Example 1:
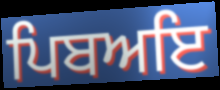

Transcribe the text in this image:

ਪਿਬਅਇ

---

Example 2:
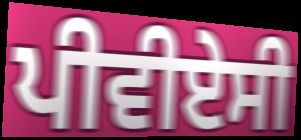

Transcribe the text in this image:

ਪੀਵੀਏਸੀ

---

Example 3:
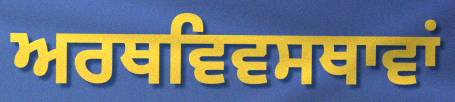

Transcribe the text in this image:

ਅਰਥਵਿਵਸਥਾਵਾਂ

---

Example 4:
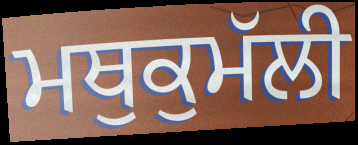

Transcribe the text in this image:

ਮਥੁਕੁਮੱਲੀ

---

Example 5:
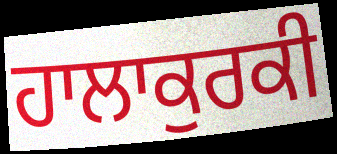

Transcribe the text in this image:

ਹਾਲਾਕੁਰਕੀ